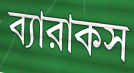
ব্যারাকস